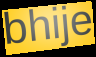
bhije